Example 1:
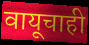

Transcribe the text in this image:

वायूचाही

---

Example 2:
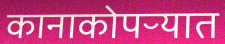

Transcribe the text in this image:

कानाकोपऱ्यात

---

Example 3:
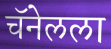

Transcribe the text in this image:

चॅनेलला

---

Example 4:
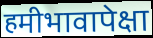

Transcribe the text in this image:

हमीभावापेक्षा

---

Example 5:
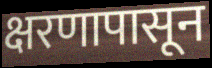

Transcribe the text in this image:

क्षरणापासून